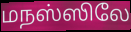
மநஸ்ஸிலே